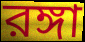
রঙ্গা